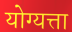
योग्यत्ता